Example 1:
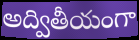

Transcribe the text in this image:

అద్వితీయంగా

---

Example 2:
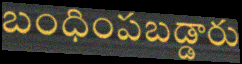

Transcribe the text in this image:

బంధింపబడ్డారు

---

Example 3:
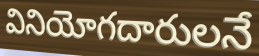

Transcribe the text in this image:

వినియోగదారులనే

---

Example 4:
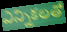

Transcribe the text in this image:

ఎన్నికలతో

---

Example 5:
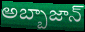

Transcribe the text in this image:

అబ్బాజాన్